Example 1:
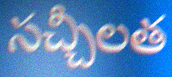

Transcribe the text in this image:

సచ్చీలత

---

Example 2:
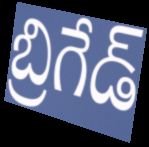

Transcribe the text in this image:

బ్రిగేడ్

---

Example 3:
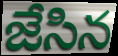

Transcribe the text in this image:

జేసిన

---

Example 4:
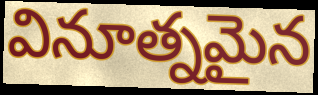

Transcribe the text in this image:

వినూత్నమైన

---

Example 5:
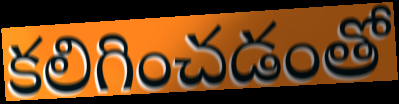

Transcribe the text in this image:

కలిగించడంతో